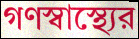
গণস্বাস্থ্যের